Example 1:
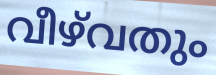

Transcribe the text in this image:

വീഴ്‌വതും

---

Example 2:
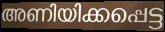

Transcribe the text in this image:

അണിയിക്കപ്പെട്ട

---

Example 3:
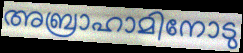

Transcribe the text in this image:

അബ്രാഹാമിനോടു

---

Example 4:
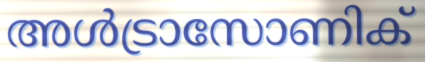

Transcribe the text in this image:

അൾട്രാസോണിക്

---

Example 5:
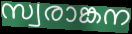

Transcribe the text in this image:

സ്വരാങ്കന